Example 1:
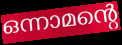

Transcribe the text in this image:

ഒന്നാമന്റെ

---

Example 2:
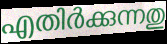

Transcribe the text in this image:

എതിർക്കുന്നതു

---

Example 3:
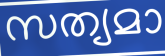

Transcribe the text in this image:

സത്യമാ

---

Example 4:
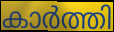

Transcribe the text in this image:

കാർത്തി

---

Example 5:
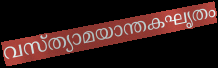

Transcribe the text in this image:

വസ്ത്യാമയാന്തകഘൃതം